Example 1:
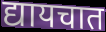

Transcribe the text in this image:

द्यायचात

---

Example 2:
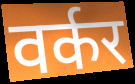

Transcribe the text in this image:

वर्कर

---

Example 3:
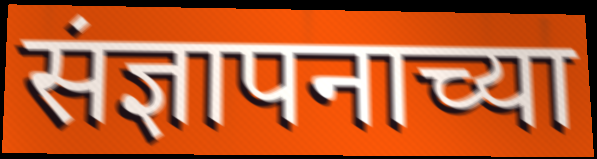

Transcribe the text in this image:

संज्ञापनाच्या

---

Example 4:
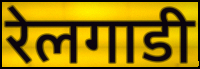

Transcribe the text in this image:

रेलगाडी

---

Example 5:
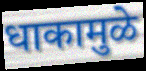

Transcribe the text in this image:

धाकामुळे